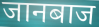
जानबाज